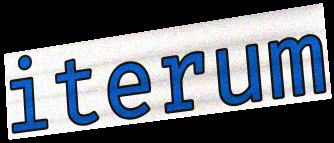
iterum